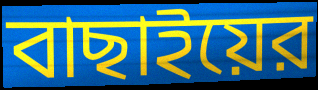
বাছাইয়ের